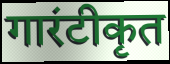
गारंटीकृत